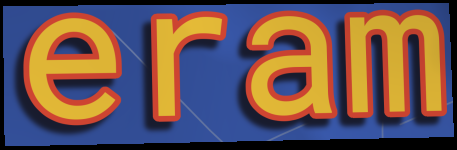
eram